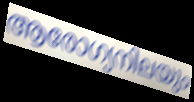
ആരോഗ്യനിലയും